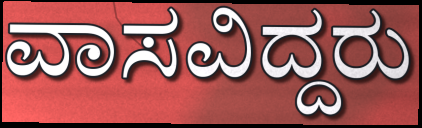
ವಾಸವಿದ್ದರು